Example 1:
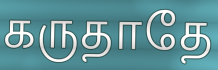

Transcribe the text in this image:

கருதாதே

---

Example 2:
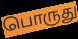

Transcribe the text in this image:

பொருது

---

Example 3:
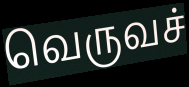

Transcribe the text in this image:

வெருவச்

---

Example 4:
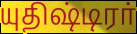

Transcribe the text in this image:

யுதிஷ்டிரர்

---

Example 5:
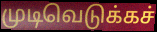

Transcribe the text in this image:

முடிவெடுக்கச்